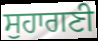
ਸੁਹਾਗਣੀ